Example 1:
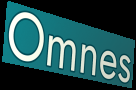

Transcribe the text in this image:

Omnes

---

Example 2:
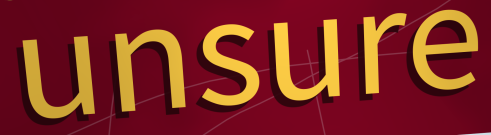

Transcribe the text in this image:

unsure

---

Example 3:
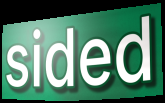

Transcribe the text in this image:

sided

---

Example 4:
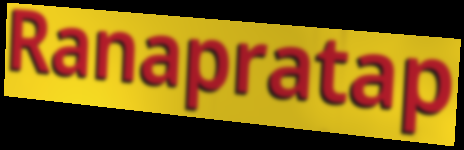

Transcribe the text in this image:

Ranapratap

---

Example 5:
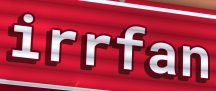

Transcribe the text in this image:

irrfan